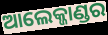
ଆଲେକ୍ଜାଣ୍ଡର